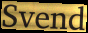
Svend